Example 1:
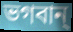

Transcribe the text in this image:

ভগবান্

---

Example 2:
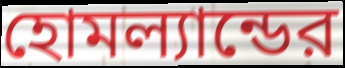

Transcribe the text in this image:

হোমল্যান্ডের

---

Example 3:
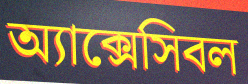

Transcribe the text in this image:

অ্যাক্সেসিবল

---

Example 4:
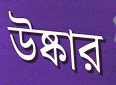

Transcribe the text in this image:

উষ্কার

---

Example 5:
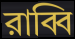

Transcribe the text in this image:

রাব্বি